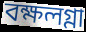
বক্ষলগ্না